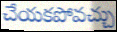
చేయకపోవచ్చు